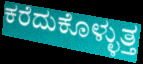
ಕರೆದುಕೊಳ್ಳುತ್ತ